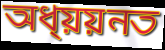
অধ্য়য়নত